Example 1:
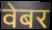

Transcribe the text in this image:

वेबर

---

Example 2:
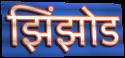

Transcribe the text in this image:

झिंझोड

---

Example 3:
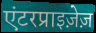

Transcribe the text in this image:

एंटरप्राइज़ेज़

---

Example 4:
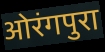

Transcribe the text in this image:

ओरंगपुरा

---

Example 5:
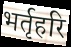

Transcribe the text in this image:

भर्तृहरि